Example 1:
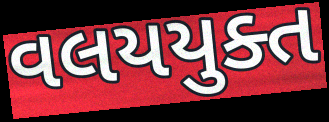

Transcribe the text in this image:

વલયયુક્ત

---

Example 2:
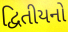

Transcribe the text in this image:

દ્વિતીયનો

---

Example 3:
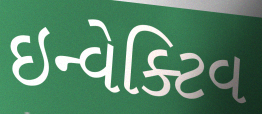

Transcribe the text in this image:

ઇન્વેક્ટિવ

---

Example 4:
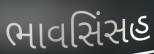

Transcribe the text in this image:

ભાવસિંસહ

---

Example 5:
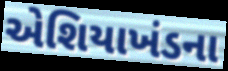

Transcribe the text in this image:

એશિયાખંડના